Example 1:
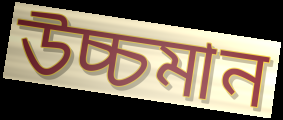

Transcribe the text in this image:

উচ্চমান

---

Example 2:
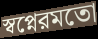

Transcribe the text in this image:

স্বপ্নেরমতো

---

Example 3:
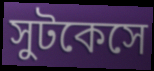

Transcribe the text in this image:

সুটকেসে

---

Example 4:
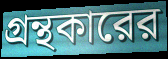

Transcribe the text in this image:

গ্রন্থকারের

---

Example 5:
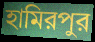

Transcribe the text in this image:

হামিরপুর